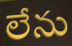
లేను